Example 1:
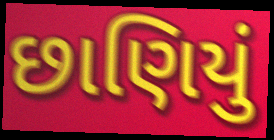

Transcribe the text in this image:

છાણિયું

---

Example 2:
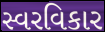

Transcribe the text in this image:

સ્વરવિકાર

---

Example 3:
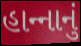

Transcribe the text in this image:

હાન્‍નાનું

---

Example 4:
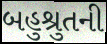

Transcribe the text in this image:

બહુશ્રુતની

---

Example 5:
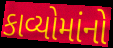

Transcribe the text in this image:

કાવ્યોમાંનો